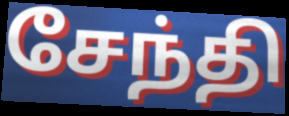
சேந்தி